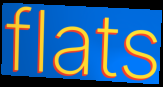
flats